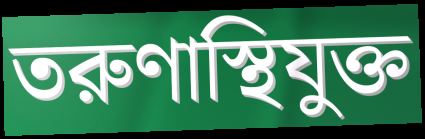
তরুণাস্থিযুক্ত